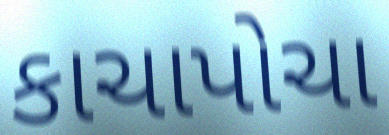
કાચાપોચા